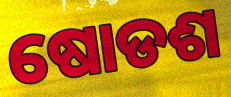
ଷୋଡଶ